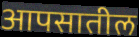
आपसातील